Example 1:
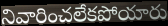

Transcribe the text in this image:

నివారించలేకపోయారు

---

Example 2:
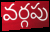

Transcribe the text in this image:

వర్గపు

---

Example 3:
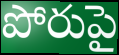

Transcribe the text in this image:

పోరుపై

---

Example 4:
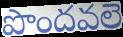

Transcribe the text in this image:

పొందవలె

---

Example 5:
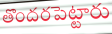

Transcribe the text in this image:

తొందరపెట్టారు